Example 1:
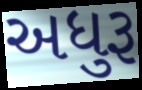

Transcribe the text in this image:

અધુરૂ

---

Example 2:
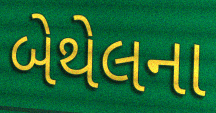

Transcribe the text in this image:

બેથેલના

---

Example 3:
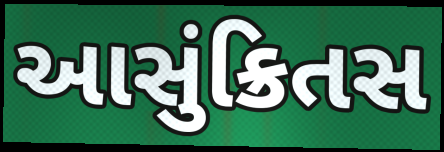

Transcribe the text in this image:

આસુંક્રિતસ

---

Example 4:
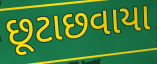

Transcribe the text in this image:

છૂટાછવાયા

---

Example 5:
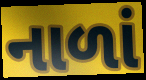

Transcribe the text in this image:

નાળાં